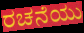
ರಚನೆಯು